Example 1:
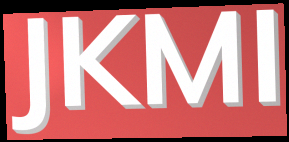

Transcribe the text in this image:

JKMI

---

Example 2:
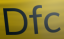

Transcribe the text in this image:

Dfc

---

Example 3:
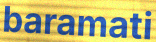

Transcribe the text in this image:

baramati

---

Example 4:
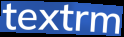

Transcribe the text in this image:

textrm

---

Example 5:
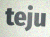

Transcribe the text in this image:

teju